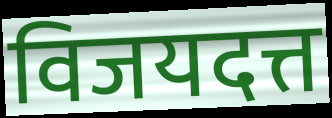
विजयदत्त